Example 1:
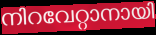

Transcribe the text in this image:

നിറവേറ്റാനായി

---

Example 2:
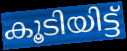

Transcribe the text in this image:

കൂടിയിട്ട്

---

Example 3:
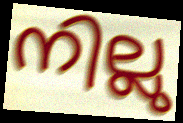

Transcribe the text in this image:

നില്ലു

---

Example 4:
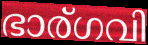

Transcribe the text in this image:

ഭാര്ഗവി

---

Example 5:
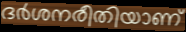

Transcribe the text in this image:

ദർശനരീതിയാണ്